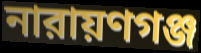
নারায়ণগঞ্জ